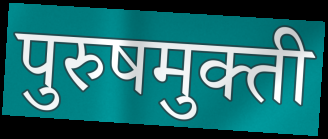
पुरुषमुक्ती